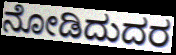
ನೋಡಿದುದರ